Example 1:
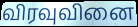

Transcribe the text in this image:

விரவுவினை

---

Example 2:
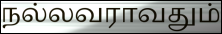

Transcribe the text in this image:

நல்லவராவதும்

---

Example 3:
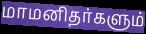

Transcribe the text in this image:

மாமனிதர்களும்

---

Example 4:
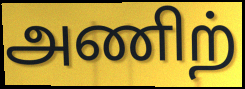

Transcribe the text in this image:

அணிற்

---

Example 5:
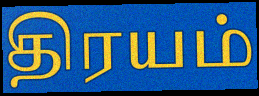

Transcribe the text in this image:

திரயம்